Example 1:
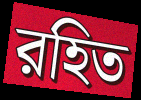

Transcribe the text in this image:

রহিত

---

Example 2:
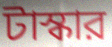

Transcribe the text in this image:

টাস্কার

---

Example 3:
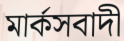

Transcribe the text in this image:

মার্কসবাদী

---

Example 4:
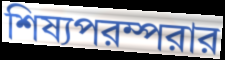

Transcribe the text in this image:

শিষ্যপরম্পরার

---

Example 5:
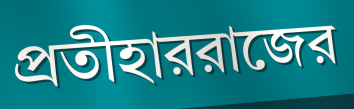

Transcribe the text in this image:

প্রতীহাররাজের